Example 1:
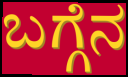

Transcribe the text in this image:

ಬಗ್ಗೆನ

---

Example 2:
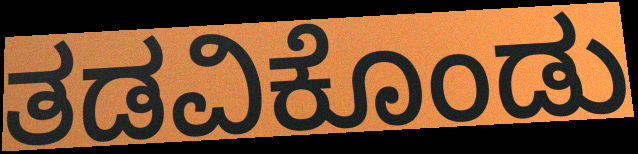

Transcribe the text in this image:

ತಡವಿಕೊಂಡು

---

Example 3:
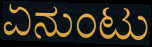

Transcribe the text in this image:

ಏನುಂಟು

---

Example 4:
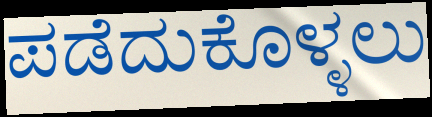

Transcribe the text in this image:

ಪಡೆದುಕೊಳ್ಳಲು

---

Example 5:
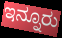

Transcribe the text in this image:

ಇನ್ನೂರು